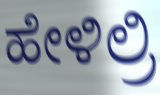
ಹೇಳಿಲ್ರಿ